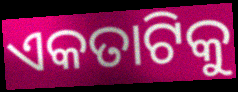
ଏକତାଟିକୁ